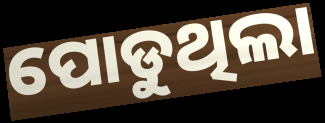
ପୋଡୁଥିଲା